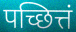
पच्छित्तं